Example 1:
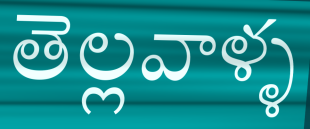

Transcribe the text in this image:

తెల్లవాళ్ళ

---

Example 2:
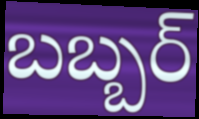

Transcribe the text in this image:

బబ్బర్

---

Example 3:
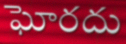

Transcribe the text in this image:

ఘోరదు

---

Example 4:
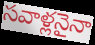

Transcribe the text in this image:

సవాళ్లనైనా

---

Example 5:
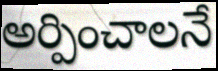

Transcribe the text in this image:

అర్పించాలనే